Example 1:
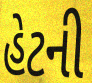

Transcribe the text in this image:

હેટની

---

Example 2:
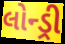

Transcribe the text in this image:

લોન્ડ્રી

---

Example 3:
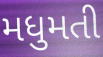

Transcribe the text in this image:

મધુમતી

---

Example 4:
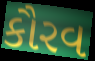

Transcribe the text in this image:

કૌરવ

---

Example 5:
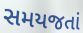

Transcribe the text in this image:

સમયજતાં